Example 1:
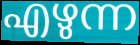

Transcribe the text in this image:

എഴുന്ന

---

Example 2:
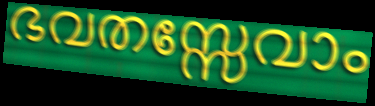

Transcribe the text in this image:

ഭവതസ്സേവാം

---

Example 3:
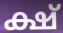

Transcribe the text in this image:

ക്ഷ്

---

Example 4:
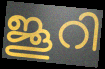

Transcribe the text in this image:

ജൂറി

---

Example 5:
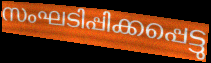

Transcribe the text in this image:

സംഘടിപ്പിക്കപ്പെട്ടു